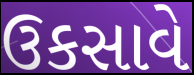
ઉકસાવે